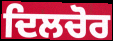
ਦਿਲਚੋਰ